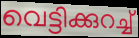
വെട്ടിക്കുറച്ച്